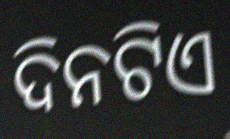
ଦିନଟିଏ